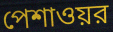
পেশাওয়র